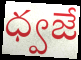
ధ్వజే